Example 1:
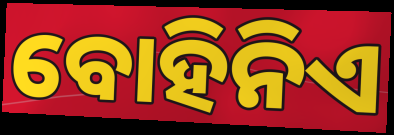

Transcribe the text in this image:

ବୋହିନିଏ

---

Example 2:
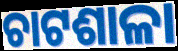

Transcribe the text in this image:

ଚାଟଶାଳା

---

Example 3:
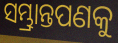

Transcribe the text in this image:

ସମ୍ଭ୍ରାନ୍ତପଣକୁ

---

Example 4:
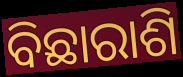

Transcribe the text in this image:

ବିଛାରାଶି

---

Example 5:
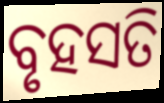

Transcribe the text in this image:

ବୃହସତି